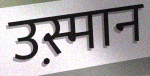
उ़स्मान